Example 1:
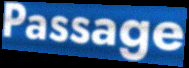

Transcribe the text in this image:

Passage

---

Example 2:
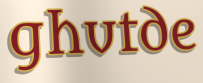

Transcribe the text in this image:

ghutde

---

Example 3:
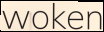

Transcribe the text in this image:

woken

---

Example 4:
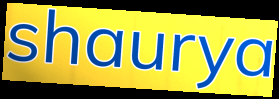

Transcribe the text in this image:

shaurya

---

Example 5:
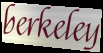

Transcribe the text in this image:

berkeley